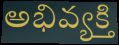
అభివ్యక్తి